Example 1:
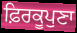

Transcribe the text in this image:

ਫ਼ਿਰਕੂਪੁਣਾ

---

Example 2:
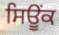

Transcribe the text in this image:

ਸਿਊਂਕ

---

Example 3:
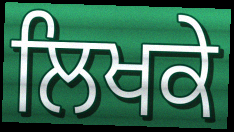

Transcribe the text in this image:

ਲਿਖਕੇ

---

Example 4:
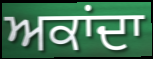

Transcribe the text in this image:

ਅਕਾਂਦਾ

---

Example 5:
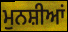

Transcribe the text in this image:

ਮੁਨਸ਼ੀਆਂ